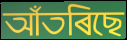
আঁতৰিছে